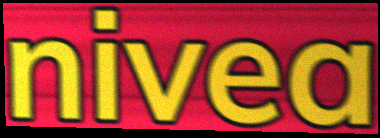
nivea